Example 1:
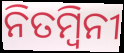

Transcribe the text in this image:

ନିତମ୍ବିନୀ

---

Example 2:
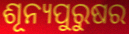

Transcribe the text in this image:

ଶୂନ୍ୟପୁରୁଷର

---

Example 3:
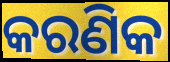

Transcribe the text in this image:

କରଣିକ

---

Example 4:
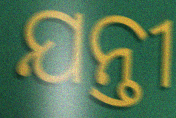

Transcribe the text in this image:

ଯନ୍ତୀ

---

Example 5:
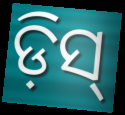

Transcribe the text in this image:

ଡ଼ିସ୍